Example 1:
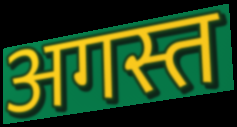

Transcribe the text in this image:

अगस्त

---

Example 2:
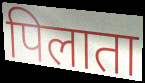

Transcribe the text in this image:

पिलाता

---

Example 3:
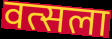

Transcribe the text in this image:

वत्‍सला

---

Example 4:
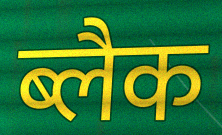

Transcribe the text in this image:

ब्लैक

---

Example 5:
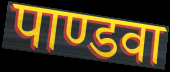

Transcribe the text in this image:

पाण्डवा